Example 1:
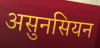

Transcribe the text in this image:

असुनसियन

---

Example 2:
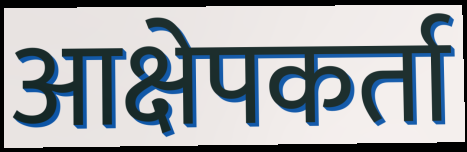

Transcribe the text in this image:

आक्षेपकर्ता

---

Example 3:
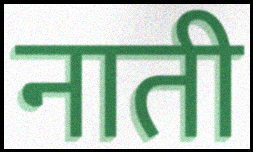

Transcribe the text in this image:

नाती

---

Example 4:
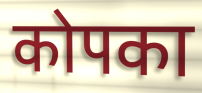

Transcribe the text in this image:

कोपका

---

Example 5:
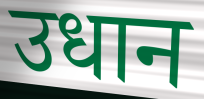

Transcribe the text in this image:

उधान